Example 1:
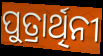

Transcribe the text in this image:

ପୁତ୍ରାର୍ଥିନୀ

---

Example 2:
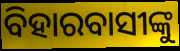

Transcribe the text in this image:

ବିହାରବାସୀଙ୍କୁ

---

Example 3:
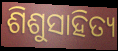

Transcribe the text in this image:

ଶିଶୁସାହିତ୍ୟ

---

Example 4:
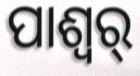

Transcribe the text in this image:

ପାଶ୍ୱର୍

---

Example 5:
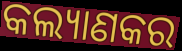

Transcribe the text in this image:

କଲ୍ୟାଣକର